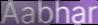
Aabhar